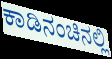
ಕಾಡಿನಂಚಿನಲ್ಲಿ